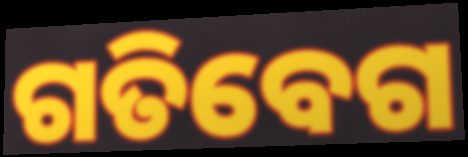
ଗତିବେଗ